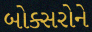
બોક્સરોને